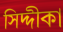
সিদ্দীকা